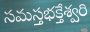
సమస్తభక్తేశ్వరి